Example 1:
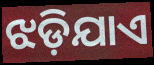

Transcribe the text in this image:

ଝଡ଼ିଯାଏ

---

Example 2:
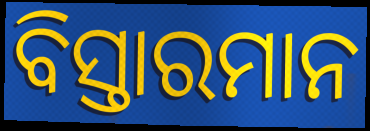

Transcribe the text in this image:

ବିସ୍ତାରମାନ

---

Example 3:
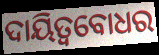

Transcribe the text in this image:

ଦାୟିତ୍ବବୋଧର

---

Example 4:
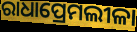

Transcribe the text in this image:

ରାଧାପ୍ରେମଲୀଳା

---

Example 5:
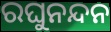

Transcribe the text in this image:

ରଘୁନନ୍ଦନ